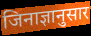
जिनाज्ञानुसार